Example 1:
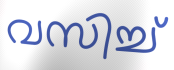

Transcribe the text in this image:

വസിച്ച്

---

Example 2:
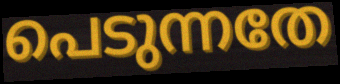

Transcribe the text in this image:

പെടുന്നതേ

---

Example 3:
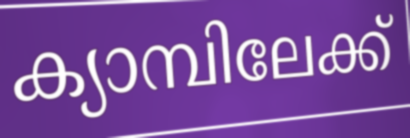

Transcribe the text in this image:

ക്യാമ്പിലേക്ക്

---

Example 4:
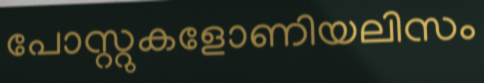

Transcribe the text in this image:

പോസ്റ്റുകളോണിയലിസം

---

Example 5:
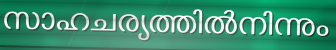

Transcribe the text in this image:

സാഹചര്യത്തിൽനിന്നും